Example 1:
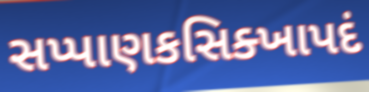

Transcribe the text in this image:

સપ્પાણકસિક્ખાપદં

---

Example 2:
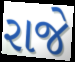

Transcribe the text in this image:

રાજે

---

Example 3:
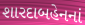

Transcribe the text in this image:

શારદાબહેનનાં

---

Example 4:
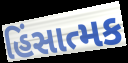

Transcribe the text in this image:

હિંસાત્મક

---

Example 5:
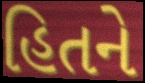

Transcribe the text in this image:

હિતને